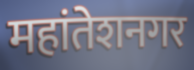
महांतेशनगर